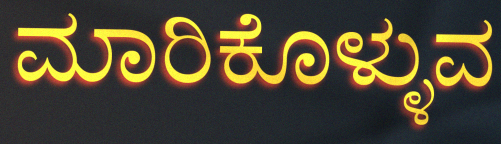
ಮಾರಿಕೊಳ್ಳುವ